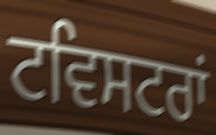
ਟਵਿਸਟਰਾਂ